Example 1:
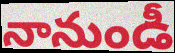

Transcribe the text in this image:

నానుండీ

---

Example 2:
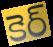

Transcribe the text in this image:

కెర్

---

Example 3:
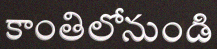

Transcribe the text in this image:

కాంతిలోనుండి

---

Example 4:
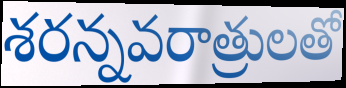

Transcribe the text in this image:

శరన్నవరాత్రులతో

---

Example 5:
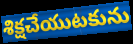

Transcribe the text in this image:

శిక్షచేయుటకును